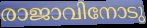
രാജാവിനോടു